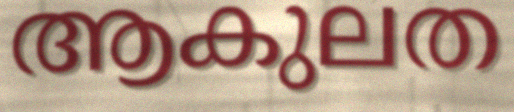
ആകുലത